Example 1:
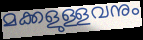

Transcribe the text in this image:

മക്കളുള്ളവനും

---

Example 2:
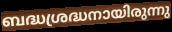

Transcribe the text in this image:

ബദ്ധശ്രദ്ധനായിരുന്നു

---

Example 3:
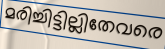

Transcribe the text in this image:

മരിച്ചിട്ടില്ലിതേവരെ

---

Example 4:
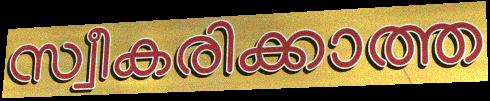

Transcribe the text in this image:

സ്വീകരിക്കാത്ത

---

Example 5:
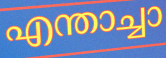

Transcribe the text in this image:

എന്താച്ചാ